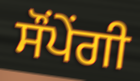
ਸੌਂਪੇਂਗੀ